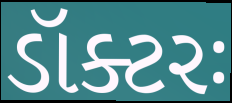
ડૉક્ટરઃ